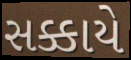
સક્કાયે